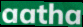
aatha